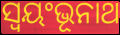
ସ୍ଵୟଂଭୂନାଥ